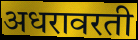
अधरावरती